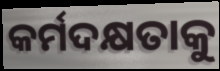
କର୍ମଦକ୍ଷତାକୁ